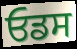
ਓਡਸ